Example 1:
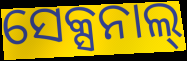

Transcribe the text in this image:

ସେକ୍ସନାଲ୍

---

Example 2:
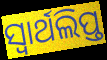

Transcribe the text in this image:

ସ୍ୱାର୍ଥଲିପ୍ତ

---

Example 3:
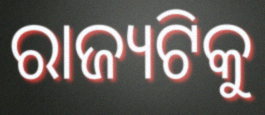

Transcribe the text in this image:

ରାଜ୍ୟଟିକୁ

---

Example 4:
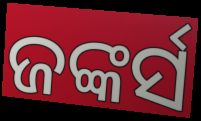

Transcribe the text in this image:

ଜଙ୍କର୍ସ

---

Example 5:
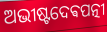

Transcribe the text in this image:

ଅଭୀଷ୍ଟଦେଵପତ୍ନୀ